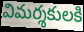
విమర్శకులకి